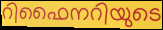
റിഫൈനറിയുടെ